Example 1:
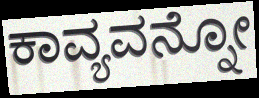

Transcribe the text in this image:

ಕಾವ್ಯವನ್ನೋ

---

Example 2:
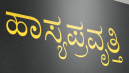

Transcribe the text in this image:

ಹಾಸ್ಯಪ್ರವೃತ್ತಿ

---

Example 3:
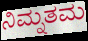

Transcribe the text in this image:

ನಿಮ್ನತಮ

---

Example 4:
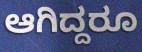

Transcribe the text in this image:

ಆಗಿದ್ದರೂ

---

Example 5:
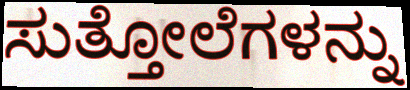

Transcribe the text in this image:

ಸುತ್ತೋಲೆಗಳನ್ನು